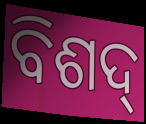
ବିଶଦ୍